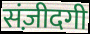
संज़ीदगी